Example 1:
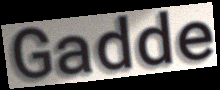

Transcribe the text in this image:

Gadde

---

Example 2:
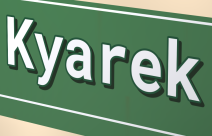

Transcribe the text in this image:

Kyarek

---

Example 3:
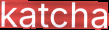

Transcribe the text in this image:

katcha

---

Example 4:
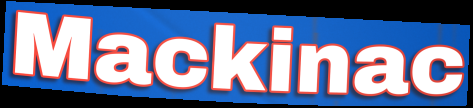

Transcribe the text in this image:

Mackinac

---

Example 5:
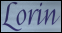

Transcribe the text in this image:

Lorin